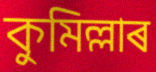
কুমিল্লাৰ